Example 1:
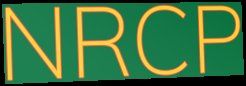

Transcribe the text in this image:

NRCP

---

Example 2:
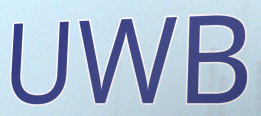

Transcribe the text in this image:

UWB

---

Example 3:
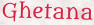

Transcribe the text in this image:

Ghetana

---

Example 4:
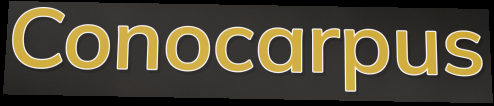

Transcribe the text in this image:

Conocarpus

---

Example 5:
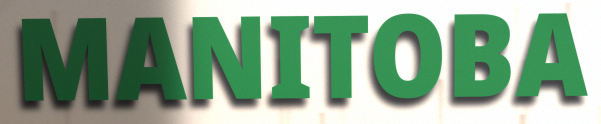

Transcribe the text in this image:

MANITOBA